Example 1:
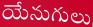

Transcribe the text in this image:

యేనుగులు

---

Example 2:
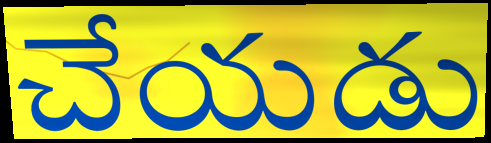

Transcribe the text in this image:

చేయడు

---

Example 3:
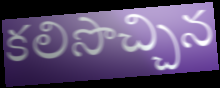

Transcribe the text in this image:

కలిసొచ్చిన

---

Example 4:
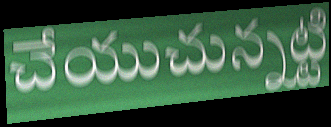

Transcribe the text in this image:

చేయుచున్నట్టి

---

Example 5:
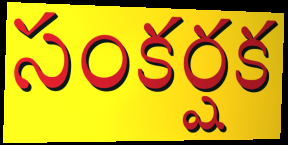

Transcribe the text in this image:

సంకర్షక